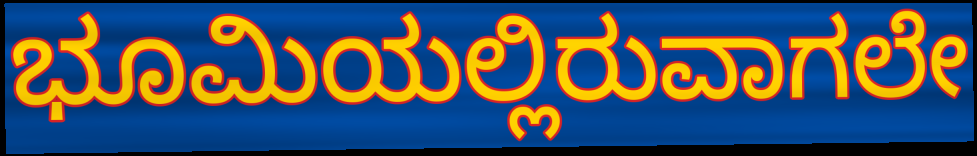
ಭೂಮಿಯಲ್ಲಿರುವಾಗಲೇ